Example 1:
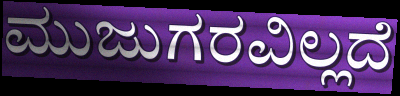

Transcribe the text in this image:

ಮುಜುಗರವಿಲ್ಲದೆ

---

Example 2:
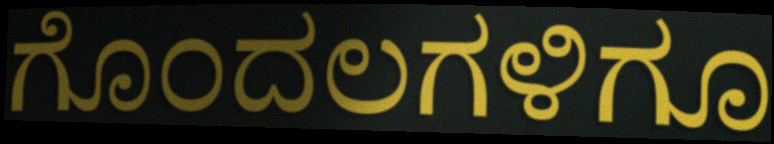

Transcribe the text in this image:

ಗೊಂದಲಗಳಿಗೂ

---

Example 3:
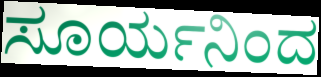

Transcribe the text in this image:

ಸೂರ್ಯನಿಂದ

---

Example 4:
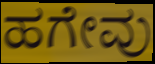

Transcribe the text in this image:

ಹಗೇವು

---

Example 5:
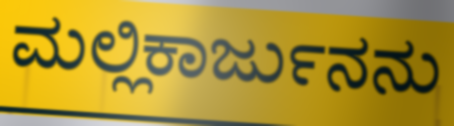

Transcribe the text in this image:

ಮಲ್ಲಿಕಾರ್ಜುನನು